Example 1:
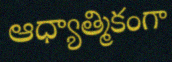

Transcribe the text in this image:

ఆధ్యాత్మికంగా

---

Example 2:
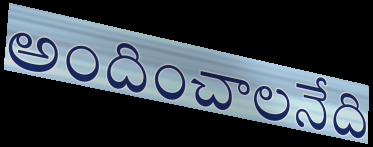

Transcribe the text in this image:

అందించాలనేది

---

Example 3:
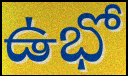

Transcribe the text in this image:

ఉభో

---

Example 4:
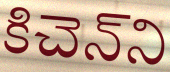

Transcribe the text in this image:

కిచెన్‌ని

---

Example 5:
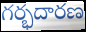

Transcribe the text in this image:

గర్భదారణ